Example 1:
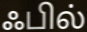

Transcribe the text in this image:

ஃபில்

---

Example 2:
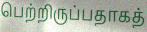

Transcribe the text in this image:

பெற்றிருப்பதாகத்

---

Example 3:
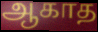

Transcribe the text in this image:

ஆகாத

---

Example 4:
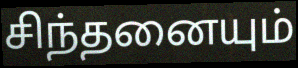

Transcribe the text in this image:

சிந்தனையும்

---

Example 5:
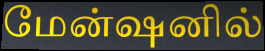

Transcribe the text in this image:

மேன்ஷனில்